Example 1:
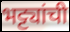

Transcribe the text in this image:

भट्ट्यांची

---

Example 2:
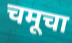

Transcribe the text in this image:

चमूचा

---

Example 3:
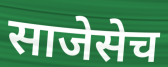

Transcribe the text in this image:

साजेसेच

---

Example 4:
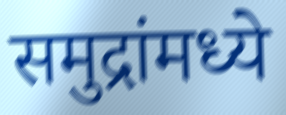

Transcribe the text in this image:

समुद्रांमध्ये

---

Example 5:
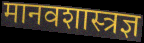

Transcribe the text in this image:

मानवशास्त्रज्ञ